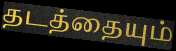
தடத்தையும்